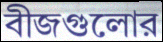
বীজগুলোর